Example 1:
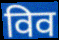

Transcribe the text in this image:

विव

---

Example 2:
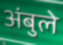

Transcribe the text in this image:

अंबुले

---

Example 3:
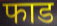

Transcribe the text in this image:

फाड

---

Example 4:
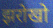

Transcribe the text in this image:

झरोखो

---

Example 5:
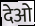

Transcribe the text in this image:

देओ